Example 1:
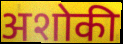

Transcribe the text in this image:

अशोकी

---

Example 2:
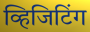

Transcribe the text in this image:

व्हिजिटिंग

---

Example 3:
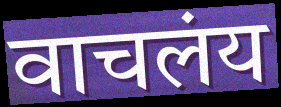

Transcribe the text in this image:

वाचलंय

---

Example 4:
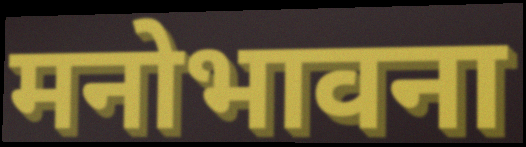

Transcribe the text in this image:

मनोभावना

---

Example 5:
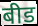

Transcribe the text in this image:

बीड